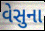
વેસુના